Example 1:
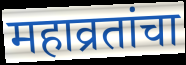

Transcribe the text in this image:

महाव्रतांचा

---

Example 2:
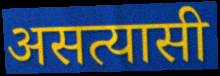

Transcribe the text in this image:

असत्यासी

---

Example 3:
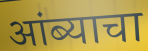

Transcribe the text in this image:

आंब्याचा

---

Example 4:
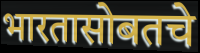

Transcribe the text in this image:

भारतासोबतचे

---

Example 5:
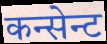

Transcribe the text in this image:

कन्सेन्ट